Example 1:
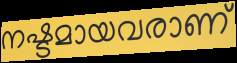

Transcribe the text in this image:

നഷ്ടമായവരാണ്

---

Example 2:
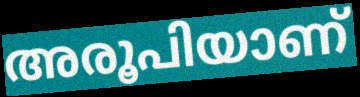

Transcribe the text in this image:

അരൂപിയാണ്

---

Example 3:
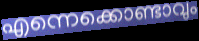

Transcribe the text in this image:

എന്നെക്കൊണ്ടാവും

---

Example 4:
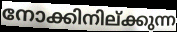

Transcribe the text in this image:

നോക്കിനില്ക്കുന്ന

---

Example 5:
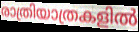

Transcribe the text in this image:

രാത്രിയാത്രകളിൽ